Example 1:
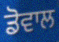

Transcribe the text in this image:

ਡੋਵਾਲ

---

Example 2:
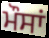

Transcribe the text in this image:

ਮੌਸਾਂ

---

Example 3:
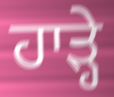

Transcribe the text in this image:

ਹਾੜ੍ਹੇ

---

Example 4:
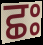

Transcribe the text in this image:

ਛਃ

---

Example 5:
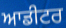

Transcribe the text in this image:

ਆਡੀਟਰ